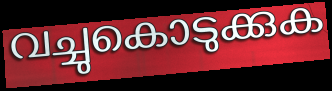
വച്ചുകൊടുക്കുക